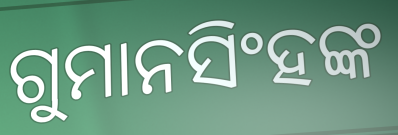
ଗୁମାନସିଂହଙ୍କ